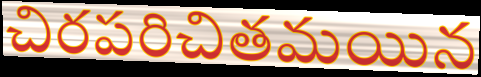
చిరపరిచితమయిన